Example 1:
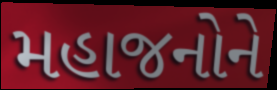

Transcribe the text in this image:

મહાજનોને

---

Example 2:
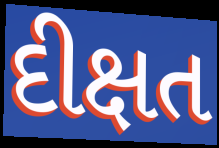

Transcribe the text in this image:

દીક્ષત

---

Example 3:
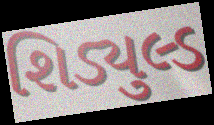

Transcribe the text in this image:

શિડ્યુલ્ડ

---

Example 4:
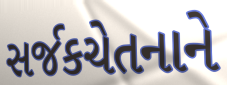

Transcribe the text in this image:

સર્જકચેતનાને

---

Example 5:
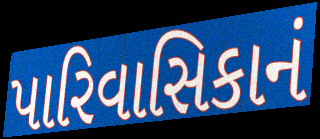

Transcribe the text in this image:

પારિવાસિકાનં